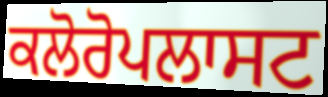
ਕਲੋਰੋਪਲਾਸਟ